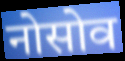
नोसोव